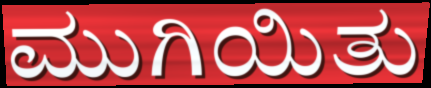
ಮುಗಿಯಿತು